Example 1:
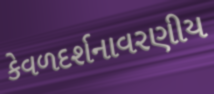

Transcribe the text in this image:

કેવળદર્શનાવરણીય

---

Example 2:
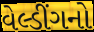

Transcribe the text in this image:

વેલ્ડીંગનો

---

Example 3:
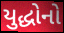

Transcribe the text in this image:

યુદ્ધોનો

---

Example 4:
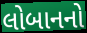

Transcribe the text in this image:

લોબાનનો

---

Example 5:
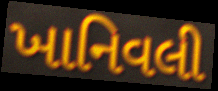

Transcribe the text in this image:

ખાનિવલી